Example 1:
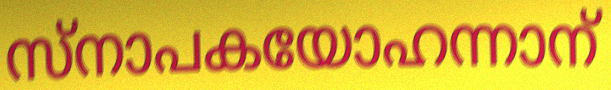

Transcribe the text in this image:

സ്നാപകയോഹന്നാന്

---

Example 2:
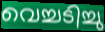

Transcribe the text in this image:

വെച്ചടിച്ചു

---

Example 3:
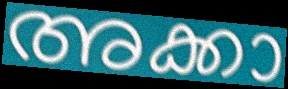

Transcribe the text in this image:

അക്കാ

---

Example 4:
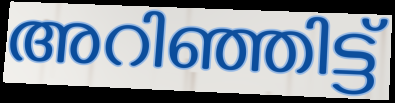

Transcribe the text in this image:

അറിഞ്ഞിട്ട്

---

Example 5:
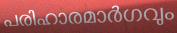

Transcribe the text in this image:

പരിഹാരമാർഗവും